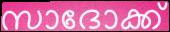
സാദോക്ക്